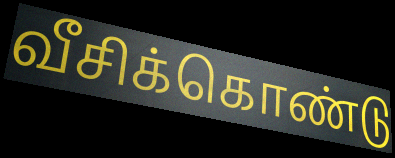
வீசிக்கொண்டு